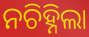
ନଚିହ୍ନିଲା